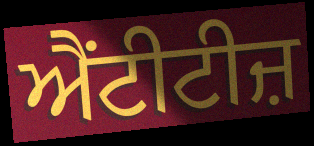
ਐਂਟੀਟੀਜ਼